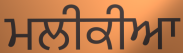
ਮਲੀਕੀਆ